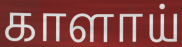
காளாய்